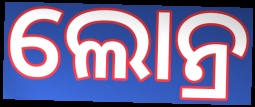
ଲୋନ୍ର